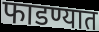
फाडण्यात